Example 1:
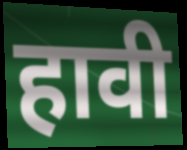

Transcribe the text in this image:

हावी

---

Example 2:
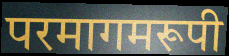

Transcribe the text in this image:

परमागमरूपी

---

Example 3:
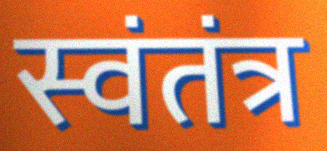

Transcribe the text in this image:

स्वंतंत्र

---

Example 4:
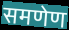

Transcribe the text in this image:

समणेण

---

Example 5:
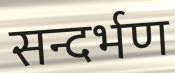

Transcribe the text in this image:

सन्दर्भण